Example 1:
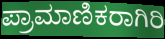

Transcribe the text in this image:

ಪ್ರಾಮಾಣಿಕರಾಗಿರಿ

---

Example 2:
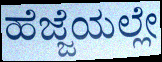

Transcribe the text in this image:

ಹೆಜ್ಜೆಯಲ್ಲೇ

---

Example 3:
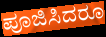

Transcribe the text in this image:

ಪೂಜಿಸಿದರೂ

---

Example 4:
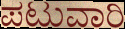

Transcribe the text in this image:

ಪಟುವಾರಿ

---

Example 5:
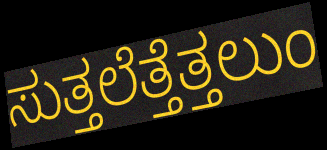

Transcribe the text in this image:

ಸುತ್ತಲೆತ್ತೆತ್ತಲುಂ